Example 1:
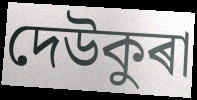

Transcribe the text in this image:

দেউকুৰা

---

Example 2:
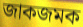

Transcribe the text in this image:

জাকজমক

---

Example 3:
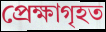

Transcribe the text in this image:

প্ৰেক্ষাগৃহত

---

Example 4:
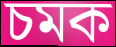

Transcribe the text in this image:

চমক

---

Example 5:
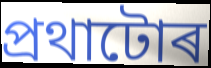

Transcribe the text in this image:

প্ৰথাটোৰ